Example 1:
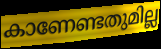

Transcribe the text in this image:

കാണേണ്ടതുമില്ല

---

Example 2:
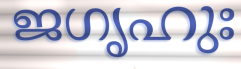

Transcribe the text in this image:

ജഗൃഹുഃ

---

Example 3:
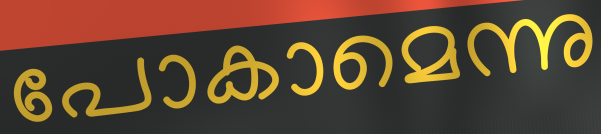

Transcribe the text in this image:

പോകാമെന്നു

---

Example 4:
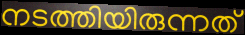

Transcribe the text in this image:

നടത്തിയിരുന്നത്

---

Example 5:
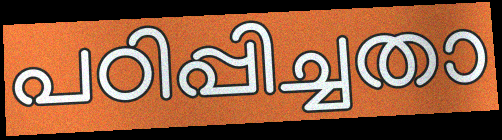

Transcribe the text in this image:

പഠിപ്പിച്ചതാ